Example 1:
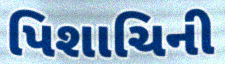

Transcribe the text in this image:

પિશાચિની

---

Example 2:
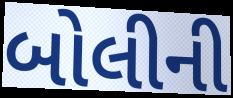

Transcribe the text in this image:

બોલીની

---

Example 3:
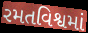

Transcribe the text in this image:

રમતવિશ્વમાં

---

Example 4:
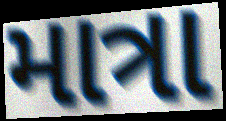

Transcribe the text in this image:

માત્રા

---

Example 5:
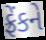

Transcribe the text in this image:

ફ્રેંકને